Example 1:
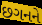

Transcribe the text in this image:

છગનને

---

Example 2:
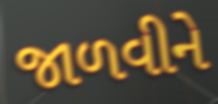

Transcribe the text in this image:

જાળવીને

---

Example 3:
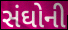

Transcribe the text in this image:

સંઘોની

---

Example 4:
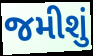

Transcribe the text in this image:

જમીશું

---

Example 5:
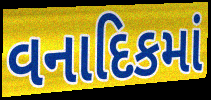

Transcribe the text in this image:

વનાદિકમાં